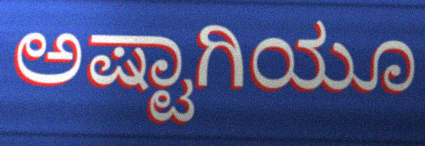
ಅಷ್ಟಾಗಿಯೂ